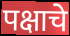
पक्षाचे